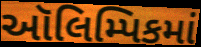
ઑલિમ્પિકમાં